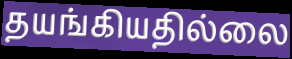
தயங்கியதில்லை